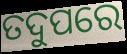
ତଦୁପରେ